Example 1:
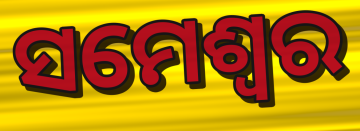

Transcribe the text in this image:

ସମେଶ୍ୱର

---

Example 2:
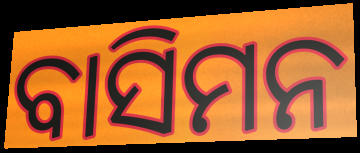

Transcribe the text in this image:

ବାସିମନ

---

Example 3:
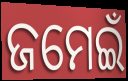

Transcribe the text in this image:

ଜମେଇଁ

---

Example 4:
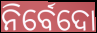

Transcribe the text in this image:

ନିର୍ବେଦୋ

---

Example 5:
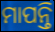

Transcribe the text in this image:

ମାପନ୍ତି